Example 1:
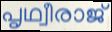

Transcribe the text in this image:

പൃഥ്വീരാജ്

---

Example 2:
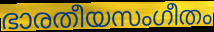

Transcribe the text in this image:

ഭാരതീയസംഗീതം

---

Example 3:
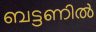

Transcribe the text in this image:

ബട്ടണിൽ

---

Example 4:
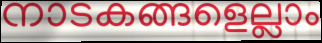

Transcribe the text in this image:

നാടകങ്ങളെല്ലാം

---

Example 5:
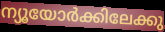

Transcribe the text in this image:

ന്യൂയോർക്കിലേക്കു